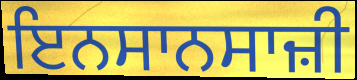
ਇਨਸਾਨਸਾਜ਼ੀ